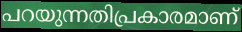
പറയുന്നതിപ്രകാരമാണ്